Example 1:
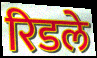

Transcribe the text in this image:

रिडले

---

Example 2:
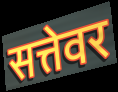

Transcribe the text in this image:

सत्तेवर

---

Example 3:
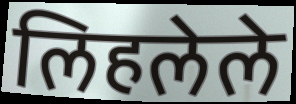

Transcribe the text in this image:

लिहलेले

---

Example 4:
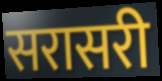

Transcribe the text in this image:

सरासरी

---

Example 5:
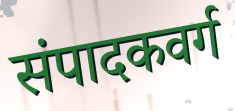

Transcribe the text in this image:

संपादकवर्ग